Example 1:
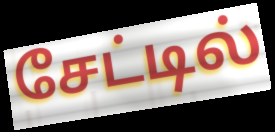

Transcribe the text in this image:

சேட்டில்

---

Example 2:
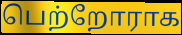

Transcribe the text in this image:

பெற்றோராக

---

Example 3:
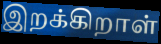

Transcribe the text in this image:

இறக்கிறாள்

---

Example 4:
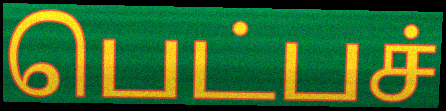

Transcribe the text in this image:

பெட்பச்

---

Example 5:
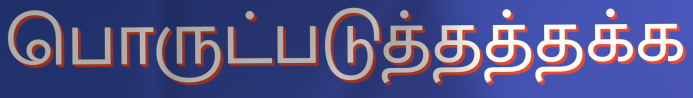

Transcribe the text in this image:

பொருட்படுத்தத்தக்க